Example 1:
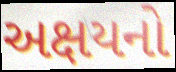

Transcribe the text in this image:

અક્ષયનો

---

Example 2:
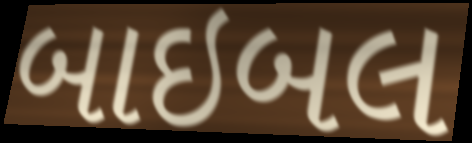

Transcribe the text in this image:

બાઇબલ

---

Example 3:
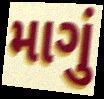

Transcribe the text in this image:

માગું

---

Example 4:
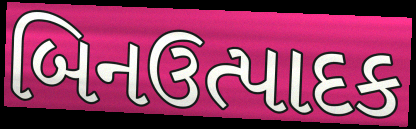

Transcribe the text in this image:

બિનઉત્પાદક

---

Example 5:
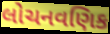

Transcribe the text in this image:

લોચનવણિક